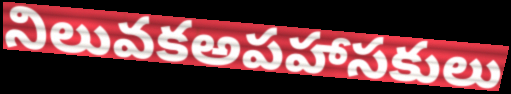
నిలువకఅపహాసకులు